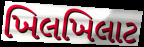
ખિલખિલાટ